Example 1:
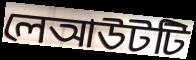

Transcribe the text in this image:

লেআউটটি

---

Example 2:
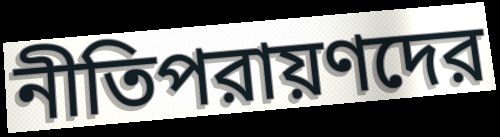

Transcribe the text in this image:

নীতিপরায়ণদের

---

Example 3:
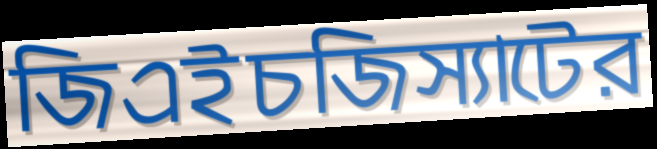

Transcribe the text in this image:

জিএইচজিস্যাটের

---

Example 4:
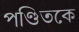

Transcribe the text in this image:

পণ্ডিতকে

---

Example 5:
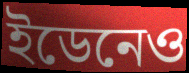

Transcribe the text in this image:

ইডেনেও